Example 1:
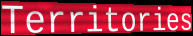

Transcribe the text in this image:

Territories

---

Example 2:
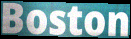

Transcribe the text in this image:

Boston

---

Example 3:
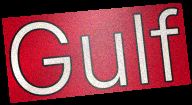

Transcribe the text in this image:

Gulf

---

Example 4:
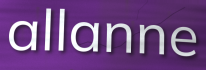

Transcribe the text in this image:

allanne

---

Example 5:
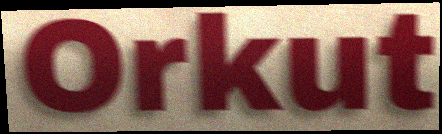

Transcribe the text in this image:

Orkut